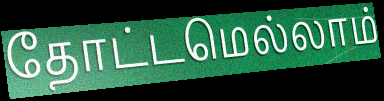
தோட்டமெல்லாம்